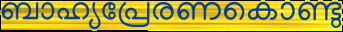
ബാഹ്യപ്രേരണകൊണ്ടു